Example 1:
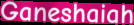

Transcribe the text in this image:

Ganeshaiah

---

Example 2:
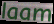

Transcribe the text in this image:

laam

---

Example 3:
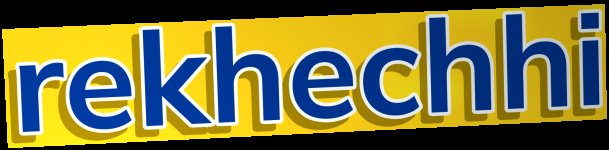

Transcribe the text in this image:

rekhechhi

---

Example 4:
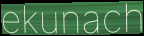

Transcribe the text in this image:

ekunach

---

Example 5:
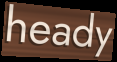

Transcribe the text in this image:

heady